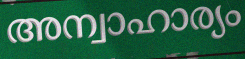
അന്വാഹാര്യം